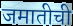
जमातीची